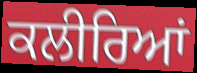
ਕਲੀਰਿਆਂ